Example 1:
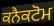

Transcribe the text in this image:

ਕਨੈਕਟੋਮ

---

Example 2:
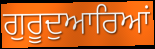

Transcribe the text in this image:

ਗੁਰੂਦੁਆਰਿਆਂ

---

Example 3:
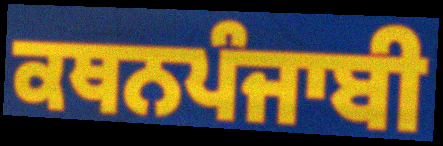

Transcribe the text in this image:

ਕਥਨਪੰਜਾਬੀ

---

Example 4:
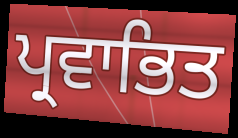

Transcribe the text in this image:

ਪ੍ਰਵਾਭਿਤ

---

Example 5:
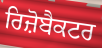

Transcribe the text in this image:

ਰਿਜ਼ੋਬੈਕਟਰ